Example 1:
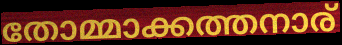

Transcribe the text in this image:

തോമ്മാക്കത്തനാര്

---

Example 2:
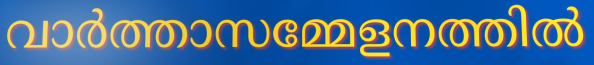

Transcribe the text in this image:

വാർത്താസമ്മേളനത്തിൽ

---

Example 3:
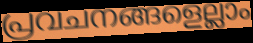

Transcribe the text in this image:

പ്രവചനങ്ങളെല്ലാം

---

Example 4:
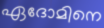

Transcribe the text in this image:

ഏദോമിനെ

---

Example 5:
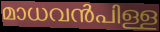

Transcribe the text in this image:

മാധവൻപിള്ള